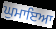
ਘੁਮਾਇਆ